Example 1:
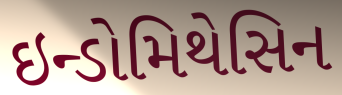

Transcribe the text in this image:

ઇન્ડોમિથેસિન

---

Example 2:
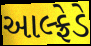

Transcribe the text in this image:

આલ્ફ્રેડે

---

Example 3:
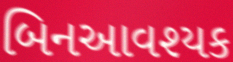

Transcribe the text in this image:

બિનઆવશ્યક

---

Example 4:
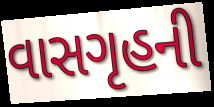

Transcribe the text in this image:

વાસગૃહની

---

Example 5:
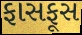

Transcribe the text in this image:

ફાસફૂસ